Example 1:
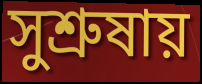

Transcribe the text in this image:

সুশ্রুষায়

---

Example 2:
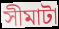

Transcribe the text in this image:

সীমাটা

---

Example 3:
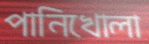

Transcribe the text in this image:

পানিখোলা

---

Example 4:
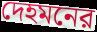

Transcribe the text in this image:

দেহমনের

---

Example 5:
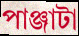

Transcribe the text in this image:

পাঞ্জাটা